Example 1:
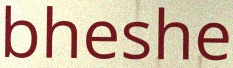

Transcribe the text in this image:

bheshe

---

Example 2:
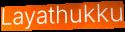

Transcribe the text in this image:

Layathukku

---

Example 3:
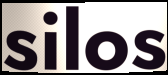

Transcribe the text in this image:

silos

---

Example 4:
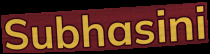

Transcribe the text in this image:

Subhasini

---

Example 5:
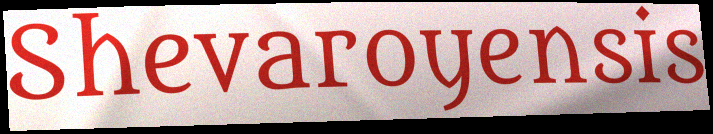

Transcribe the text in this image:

Shevaroyensis